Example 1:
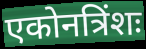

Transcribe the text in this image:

एकोनत्रिंशः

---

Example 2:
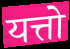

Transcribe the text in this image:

यत्तो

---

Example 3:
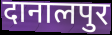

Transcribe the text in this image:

दानालपुर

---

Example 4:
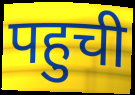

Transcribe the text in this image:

पहुची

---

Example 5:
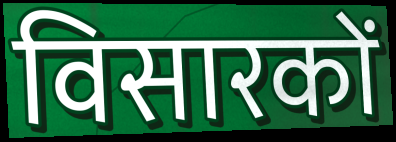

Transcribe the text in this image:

विसारकों